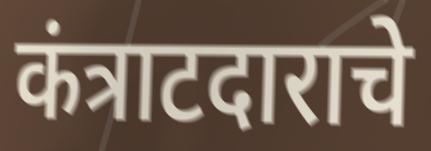
कंत्राटदाराचे